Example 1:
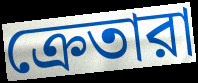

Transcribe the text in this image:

ক্রেতারা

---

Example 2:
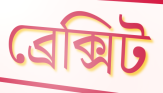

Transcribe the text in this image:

ব্রেক্সিট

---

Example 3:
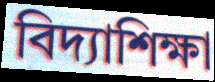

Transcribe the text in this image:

বিদ্যাশিক্ষা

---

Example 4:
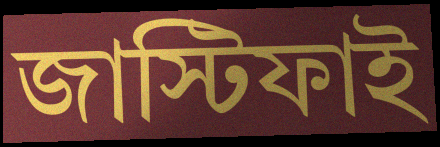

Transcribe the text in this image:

জাস্টিফাই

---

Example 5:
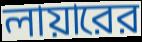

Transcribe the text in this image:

লায়ারের